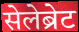
सेलेब्रेट